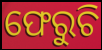
ଫେରୁଚି